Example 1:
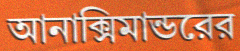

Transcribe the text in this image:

আনাক্সিমান্ডরের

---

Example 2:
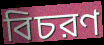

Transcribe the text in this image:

বিচরণ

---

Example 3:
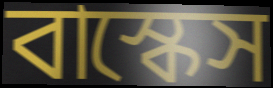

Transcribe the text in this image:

বাস্কেস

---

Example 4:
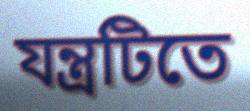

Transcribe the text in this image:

যন্ত্রটিতে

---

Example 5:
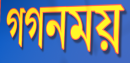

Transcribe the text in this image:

গগনময়